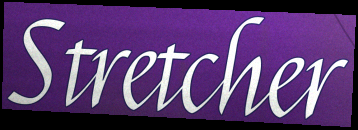
Stretcher